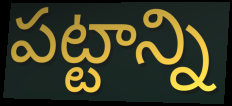
పట్టాన్ని